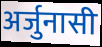
अर्जुनासी